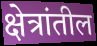
क्षेत्रांतील